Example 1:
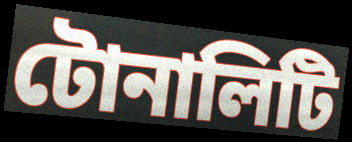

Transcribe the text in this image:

টোনালিটি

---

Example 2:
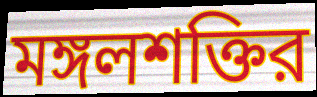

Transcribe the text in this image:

মঙ্গলশক্তির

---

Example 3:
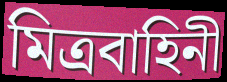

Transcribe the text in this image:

মিত্রবাহিনী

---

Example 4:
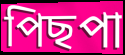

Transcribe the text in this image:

পিছপা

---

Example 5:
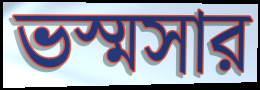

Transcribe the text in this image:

ভস্মসার